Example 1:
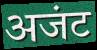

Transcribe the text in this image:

अजंट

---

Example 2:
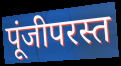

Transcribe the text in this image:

पूंजीपरस्त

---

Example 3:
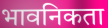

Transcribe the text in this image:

भावनिकता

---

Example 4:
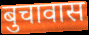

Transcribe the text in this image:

बुचावास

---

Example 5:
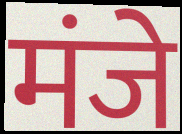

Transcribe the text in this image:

मंजे